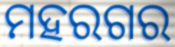
ମହରଗର